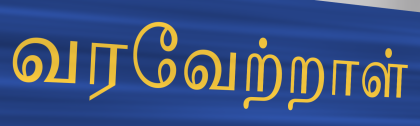
வரவேற்றாள்